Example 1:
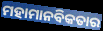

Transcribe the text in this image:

ମହାମାନବିକତାର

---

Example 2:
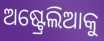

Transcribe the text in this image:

ଅଷ୍ଟ୍ରେଲିଆକୁ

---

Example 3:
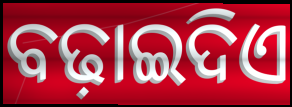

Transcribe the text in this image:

ବଢ଼ାଇଦିଏ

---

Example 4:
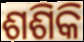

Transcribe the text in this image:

ଶଶିକି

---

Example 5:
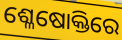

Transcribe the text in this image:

ଶ୍ଳେଷୋକ୍ତିରେ